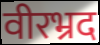
वीरभ्रद